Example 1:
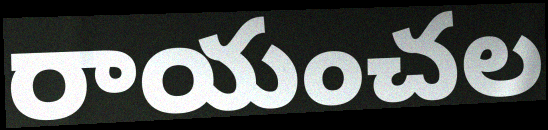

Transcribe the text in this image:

రాయంచల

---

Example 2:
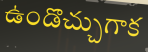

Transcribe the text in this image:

ఉండొచ్చుగాక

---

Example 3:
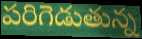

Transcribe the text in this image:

పరిగెడుతున్న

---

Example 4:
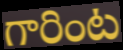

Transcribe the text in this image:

గారింట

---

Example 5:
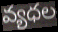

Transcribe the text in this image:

వ్యధల